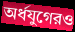
অর্ধযুগেরও